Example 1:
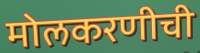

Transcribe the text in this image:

मोलकरणीची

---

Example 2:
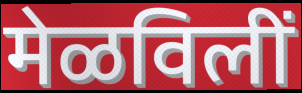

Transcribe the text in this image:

मेळविलीं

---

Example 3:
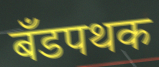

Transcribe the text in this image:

बँडपथक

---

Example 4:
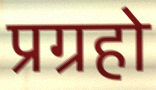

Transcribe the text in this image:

प्रग्रहो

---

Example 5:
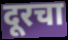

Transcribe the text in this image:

दूरचा